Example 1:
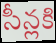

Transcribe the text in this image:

సీన్లకి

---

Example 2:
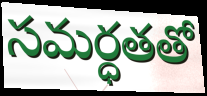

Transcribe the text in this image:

సమర్ధతతో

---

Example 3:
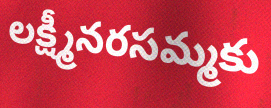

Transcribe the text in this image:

లక్ష్మీనరసమ్మకు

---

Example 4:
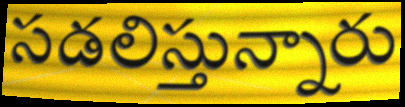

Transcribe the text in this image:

సడలిస్తున్నారు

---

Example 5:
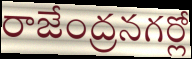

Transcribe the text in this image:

రాజేంద్రనగర్లో